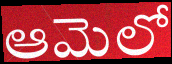
ఆమెలో